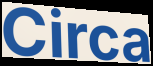
Circa